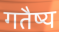
गतैष्य